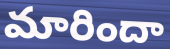
మారిందా